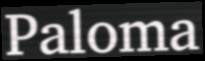
Paloma